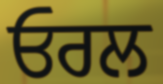
ਓਰਲ